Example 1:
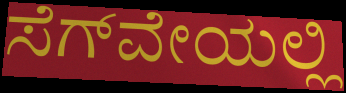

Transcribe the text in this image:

ಸೆಗ್‌ವೇಯಲ್ಲಿ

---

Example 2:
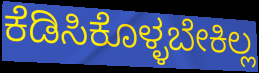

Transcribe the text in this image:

ಕೆಡಿಸಿಕೊಳ್ಳಬೇಕಿಲ್ಲ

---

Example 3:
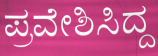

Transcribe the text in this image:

ಪ್ರವೇಶಿಸಿದ್ದ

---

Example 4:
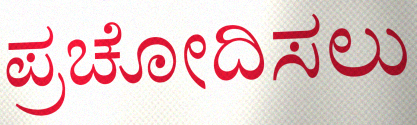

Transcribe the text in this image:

ಪ್ರಚೋದಿಸಲು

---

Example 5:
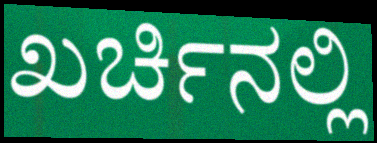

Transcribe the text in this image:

ಖರ್ಚಿನಲ್ಲಿ